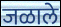
जळाले